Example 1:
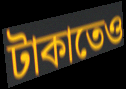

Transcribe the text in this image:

টাকাতেও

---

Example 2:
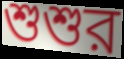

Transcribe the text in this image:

শুশুর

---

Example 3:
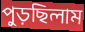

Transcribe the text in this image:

পুড়ছিলাম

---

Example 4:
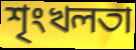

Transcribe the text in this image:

শৃংখলতা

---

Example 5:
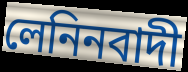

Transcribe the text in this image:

লেনিনবাদী